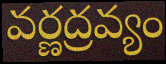
వర్ణద్రవ్యం